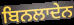
ਬਿਨਲਾਦੇਨ